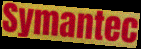
Symantec